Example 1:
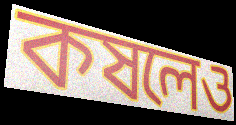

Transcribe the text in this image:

কষলেও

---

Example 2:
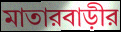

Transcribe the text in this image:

মাতারবাড়ীর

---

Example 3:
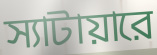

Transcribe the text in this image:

স্যাটায়ারে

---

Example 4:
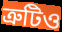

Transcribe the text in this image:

ত্রুটিও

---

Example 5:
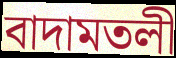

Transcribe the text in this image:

বাদামতলী